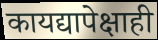
कायद्यापेक्षाही